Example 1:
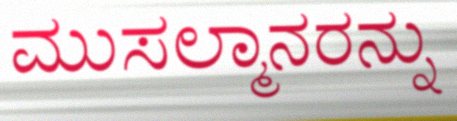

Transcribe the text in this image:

ಮುಸಲ್ಮಾನರನ್ನು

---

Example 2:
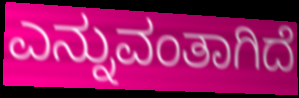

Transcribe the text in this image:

ಎನ್ನುವಂತಾಗಿದೆ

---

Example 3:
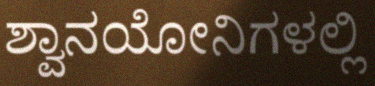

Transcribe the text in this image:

ಶ್ವಾನಯೋನಿಗಳಲ್ಲಿ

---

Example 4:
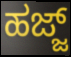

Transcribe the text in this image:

ಹಜ್ಜ್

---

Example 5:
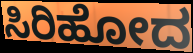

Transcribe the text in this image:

ಸಿರಿಹೋದ